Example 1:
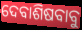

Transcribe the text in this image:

ଦେବାଶିଷବାବୁ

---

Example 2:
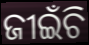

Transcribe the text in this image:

ଜୀଇଁଚି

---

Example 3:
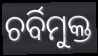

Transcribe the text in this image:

ଚର୍ବିମୁକ୍ତ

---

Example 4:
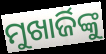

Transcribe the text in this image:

ମୁଖାର୍ଜିଙ୍କୁ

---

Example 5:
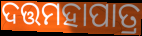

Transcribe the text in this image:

ଦତ୍ତମହାପାତ୍ର